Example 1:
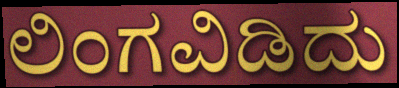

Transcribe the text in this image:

ಲಿಂಗವಿಡಿದು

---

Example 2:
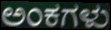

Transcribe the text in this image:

ಅಂಕಗಳು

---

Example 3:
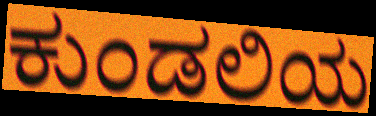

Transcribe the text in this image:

ಕುಂಡಲಿಯ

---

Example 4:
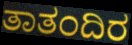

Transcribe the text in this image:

ತಾತಂದಿರ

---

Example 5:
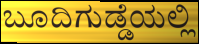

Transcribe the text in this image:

ಬೂದಿಗುಡ್ಡೆಯಲ್ಲಿ